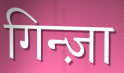
गिन्ज़ा